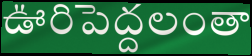
ఊరిపెద్దలంతా